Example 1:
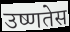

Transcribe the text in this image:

उष्णतेस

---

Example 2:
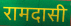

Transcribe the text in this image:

रामदासी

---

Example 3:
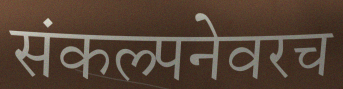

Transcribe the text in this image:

संकल्पनेवरच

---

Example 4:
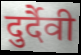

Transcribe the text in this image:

दुर्दैवी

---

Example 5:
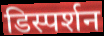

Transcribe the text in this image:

डिस्पर्शन